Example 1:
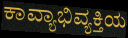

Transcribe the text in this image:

ಕಾವ್ಯಾಭಿವ್ಯಕ್ತಿಯ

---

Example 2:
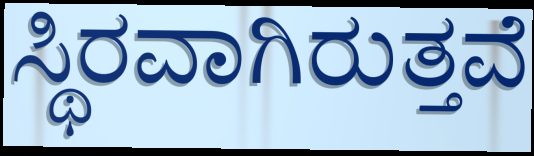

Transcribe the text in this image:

ಸ್ಥಿರವಾಗಿರುತ್ತವೆ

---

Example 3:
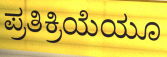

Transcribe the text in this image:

ಪ್ರತಿಕ್ರಿಯೆಯೂ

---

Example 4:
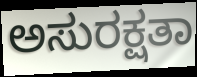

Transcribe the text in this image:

ಅಸುರಕ್ಷತಾ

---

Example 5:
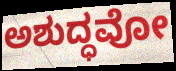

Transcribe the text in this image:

ಅಶುದ್ಧವೋ